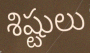
శిష్టులు